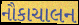
નૌકાચાલન